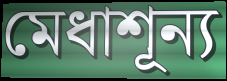
মেধাশূন্য